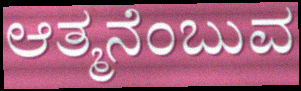
ಆತ್ಮನೆಂಬುವ